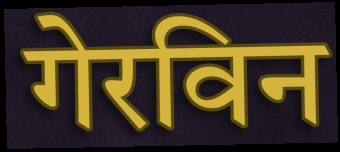
गेरविन